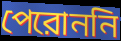
পেরোননি